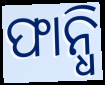
ଫାନ୍ଧି